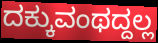
ದಕ್ಕುವಂಥದ್ದಲ್ಲ